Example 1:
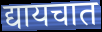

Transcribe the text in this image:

द्यायचात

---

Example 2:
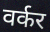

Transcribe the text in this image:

वर्कर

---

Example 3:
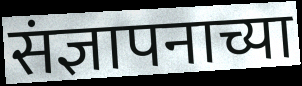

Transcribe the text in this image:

संज्ञापनाच्या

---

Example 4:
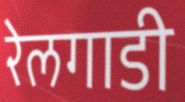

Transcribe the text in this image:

रेलगाडी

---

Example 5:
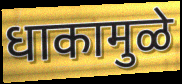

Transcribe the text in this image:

धाकामुळे